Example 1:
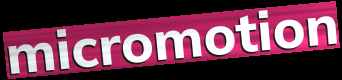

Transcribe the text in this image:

micromotion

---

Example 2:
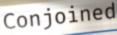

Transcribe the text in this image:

Conjoined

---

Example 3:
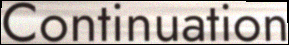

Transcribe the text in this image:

Continuation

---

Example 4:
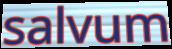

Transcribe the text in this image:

salvum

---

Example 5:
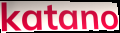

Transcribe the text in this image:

katano